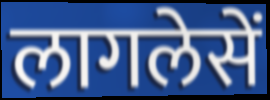
लागलेसें